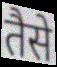
तैसे